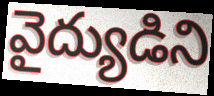
వైద్యుడిని